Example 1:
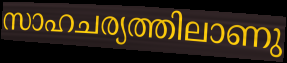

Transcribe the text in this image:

സാഹചര്യത്തിലാണു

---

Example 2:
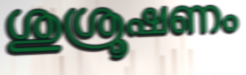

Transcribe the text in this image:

ശുശ്രൂഷണം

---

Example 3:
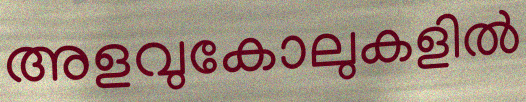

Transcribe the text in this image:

അളവുകോലുകളിൽ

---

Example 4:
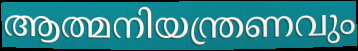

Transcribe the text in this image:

ആത്മനിയന്ത്രണവും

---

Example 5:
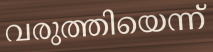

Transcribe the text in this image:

വരുത്തിയെന്ന്